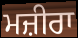
ਮਜ਼ੀਰਾ